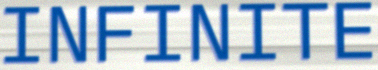
INFINITE